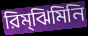
রিম্‌ঝিমিনি